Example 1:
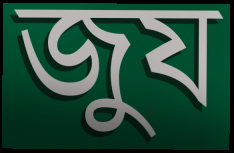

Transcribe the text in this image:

জুয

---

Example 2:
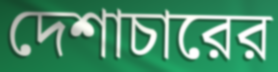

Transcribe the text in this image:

দেশাচারের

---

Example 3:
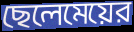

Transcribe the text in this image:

ছেলেমেয়ের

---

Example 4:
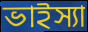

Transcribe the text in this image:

ভাইস্যা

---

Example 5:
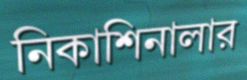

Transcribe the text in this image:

নিকাশিনালার